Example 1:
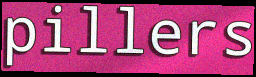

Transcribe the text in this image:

pillers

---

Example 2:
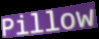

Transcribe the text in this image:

Pillow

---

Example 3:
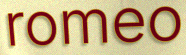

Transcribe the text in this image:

romeo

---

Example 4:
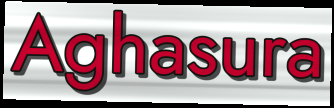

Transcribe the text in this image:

Aghasura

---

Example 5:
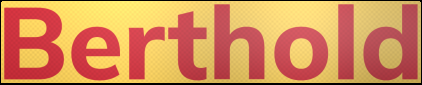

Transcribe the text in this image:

Berthold